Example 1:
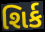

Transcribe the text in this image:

શિર્ક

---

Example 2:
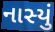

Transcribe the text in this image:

નાસ્યું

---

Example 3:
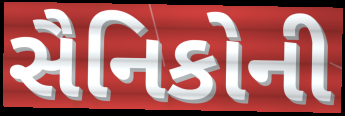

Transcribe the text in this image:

સૈનિકોની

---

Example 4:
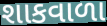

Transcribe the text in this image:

શાકવાળા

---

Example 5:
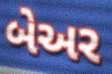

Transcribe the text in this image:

બેઅર